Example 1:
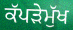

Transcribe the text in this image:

ਕੱਪੜੇਮੁੱਖ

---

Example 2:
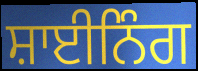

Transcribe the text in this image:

ਸ਼ਾਈਨਿੰਗ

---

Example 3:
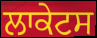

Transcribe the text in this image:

ਲਾਕੇਟਸ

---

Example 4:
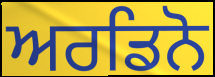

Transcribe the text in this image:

ਅਰਡਿਨੋ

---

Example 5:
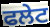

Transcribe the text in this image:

ਫਲੇਟ